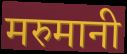
मरुमानी